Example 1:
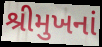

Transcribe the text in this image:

શ્રીમુખનાં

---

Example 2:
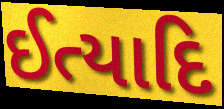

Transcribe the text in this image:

ઈત્યાદિ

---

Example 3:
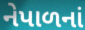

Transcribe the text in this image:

નેપાળનાં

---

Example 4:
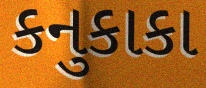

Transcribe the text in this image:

કનુકાકા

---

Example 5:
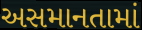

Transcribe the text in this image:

અસમાનતામાં